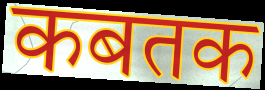
कबतक